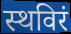
स्थविरं